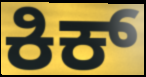
ಕಿಕ್